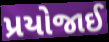
પ્રયોજાઈ